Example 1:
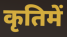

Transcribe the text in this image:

कृतिमें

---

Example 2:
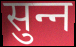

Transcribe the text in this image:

सुन्‍न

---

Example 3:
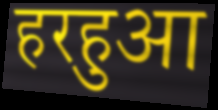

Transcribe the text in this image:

हरहुआ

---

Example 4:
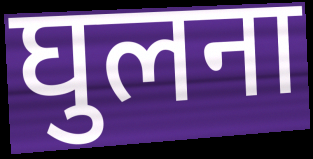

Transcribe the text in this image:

घुलना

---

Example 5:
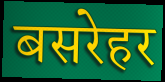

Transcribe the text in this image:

बसरेहर